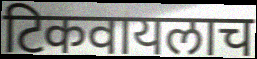
टिकवायलाच